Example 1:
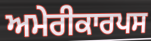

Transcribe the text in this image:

ਅਮੇਰੀਕਾਰਪਸ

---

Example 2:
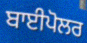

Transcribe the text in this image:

ਬਾਈਪੋਲਰ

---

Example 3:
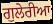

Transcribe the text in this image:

ਗੁਲੇਰੀਆ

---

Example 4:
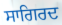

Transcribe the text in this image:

ਸਾਗਿਰਦ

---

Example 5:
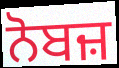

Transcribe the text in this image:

ਨੋਬਜ਼